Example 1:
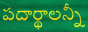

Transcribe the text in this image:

పదార్థాలన్నీ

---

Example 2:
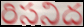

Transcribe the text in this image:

రిసనిద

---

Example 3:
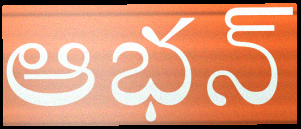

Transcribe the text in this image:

ఆభన్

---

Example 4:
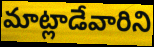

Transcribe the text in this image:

మాట్లాడేవారిని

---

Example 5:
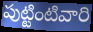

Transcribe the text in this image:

పుట్టింటివారి